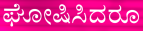
ಘೋಷಿಸಿದರೂ